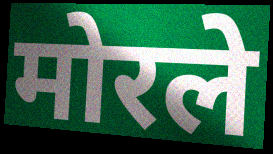
मोरले